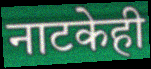
नाटकेही